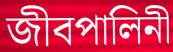
জীবপালিনী